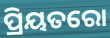
ପ୍ରିୟତରୋ